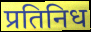
प्रतिनिध